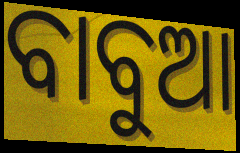
ବାବୁଆ